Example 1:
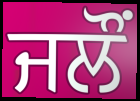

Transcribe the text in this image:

ਜਲੌਂ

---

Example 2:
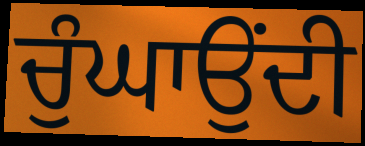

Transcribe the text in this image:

ਚੁੰਘਾਉਂਦੀ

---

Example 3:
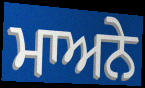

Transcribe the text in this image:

ਮਾਅਨੇ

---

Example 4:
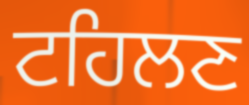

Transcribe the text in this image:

ਟਹਿਲਣ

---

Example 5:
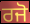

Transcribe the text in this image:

ਰਜੋ